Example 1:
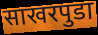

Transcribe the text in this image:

साखरपुडा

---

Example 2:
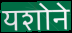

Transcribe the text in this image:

यशोने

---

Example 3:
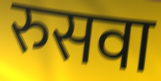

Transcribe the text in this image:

रुसवा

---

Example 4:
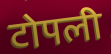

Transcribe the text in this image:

टोपली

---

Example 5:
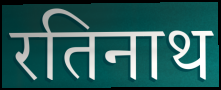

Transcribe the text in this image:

रतिनाथ